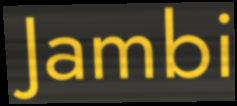
Jambi